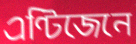
এণ্টিজেনে